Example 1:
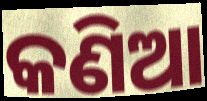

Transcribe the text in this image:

କଣିଆ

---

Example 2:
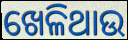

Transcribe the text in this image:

ଖେଳିଥାଉ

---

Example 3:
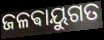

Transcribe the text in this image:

ଜଳଵାୟୁଗତ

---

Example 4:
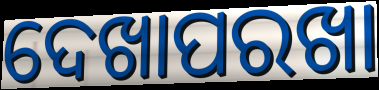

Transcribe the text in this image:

ଦେଖାପରଖା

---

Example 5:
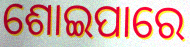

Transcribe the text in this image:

ଶୋଇପାରେ